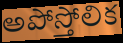
అపోస్తోలిక